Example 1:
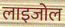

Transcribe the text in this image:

लाइजोल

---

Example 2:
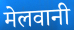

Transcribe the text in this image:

मेलवानी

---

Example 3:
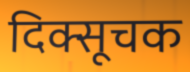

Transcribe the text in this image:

दिक्सूचक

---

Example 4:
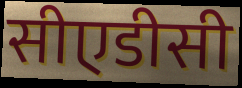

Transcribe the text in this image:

सीएडीसी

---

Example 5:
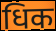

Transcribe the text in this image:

धिक